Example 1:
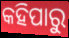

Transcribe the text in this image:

କହିପାରୁ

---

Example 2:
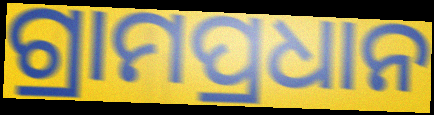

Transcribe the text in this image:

ଗ୍ରାମପ୍ରଧାନ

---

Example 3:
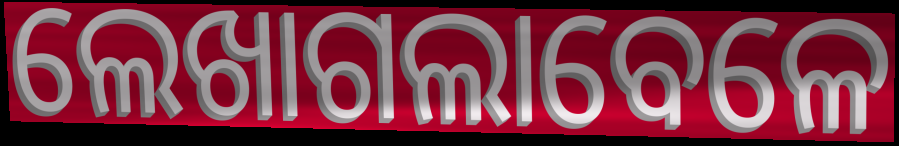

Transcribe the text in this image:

ଲେଖାଗଲାବେଳେ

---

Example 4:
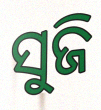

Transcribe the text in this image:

ସୁଜି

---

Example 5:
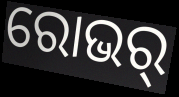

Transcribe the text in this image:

ରୋଭର୍